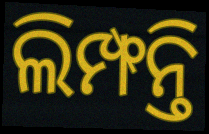
ଲିମ୍ଫନ୍ତି